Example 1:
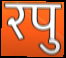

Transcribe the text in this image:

रपु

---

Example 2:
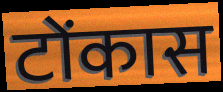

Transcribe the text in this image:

टोंकास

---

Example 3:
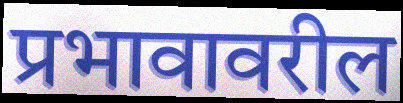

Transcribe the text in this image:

प्रभावावरील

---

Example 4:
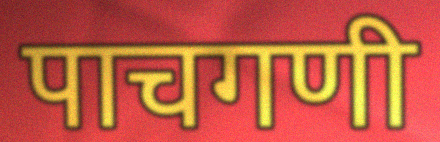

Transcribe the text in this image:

पाचगणी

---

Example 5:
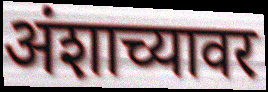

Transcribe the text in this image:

अंशाच्यावर